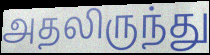
அதலிருந்து